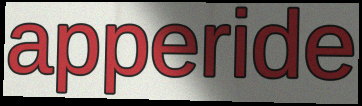
apperide